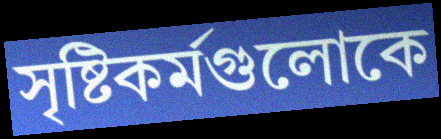
সৃষ্টিকর্মগুলোকে